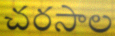
చరసాల